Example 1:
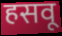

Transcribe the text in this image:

हसवू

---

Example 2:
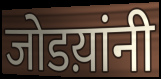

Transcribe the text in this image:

जोडय़ांनी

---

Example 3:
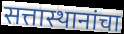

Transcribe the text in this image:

सत्तास्थानांचा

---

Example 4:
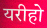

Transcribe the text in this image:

यरीहो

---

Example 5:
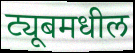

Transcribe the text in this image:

ट्यूबमधील